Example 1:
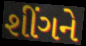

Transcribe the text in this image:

શીંગને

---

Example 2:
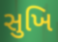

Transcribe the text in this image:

સુખિ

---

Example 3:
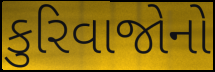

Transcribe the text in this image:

કુરિવાજોનો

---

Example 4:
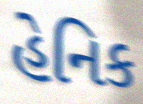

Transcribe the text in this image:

હેનિક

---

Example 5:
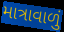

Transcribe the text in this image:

માત્રાવાળું